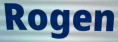
Rogen